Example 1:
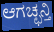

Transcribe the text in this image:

ಆಗಚ್ಛನ್ತಿ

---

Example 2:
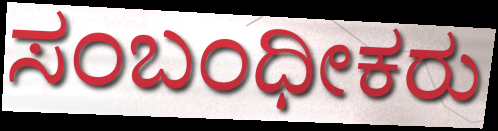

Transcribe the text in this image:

ಸಂಬಂಧೀಕರು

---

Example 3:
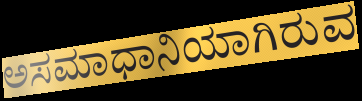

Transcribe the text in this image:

ಅಸಮಾಧಾನಿಯಾಗಿರುವ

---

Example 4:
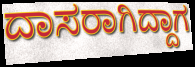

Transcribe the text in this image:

ದಾಸರಾಗಿದ್ದಾಗ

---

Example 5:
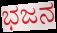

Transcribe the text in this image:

ಭಜನ